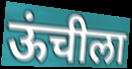
ऊंचीला